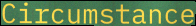
Circumstance